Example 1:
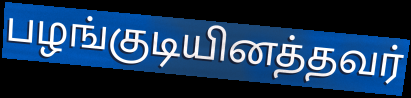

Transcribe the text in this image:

பழங்குடியினத்தவர்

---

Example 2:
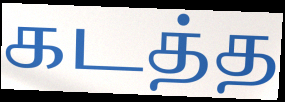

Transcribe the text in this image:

கடத்த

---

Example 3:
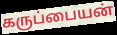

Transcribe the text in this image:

கருப்பையன்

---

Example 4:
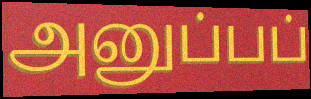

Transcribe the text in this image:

அனுப்பப்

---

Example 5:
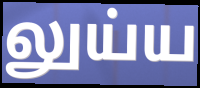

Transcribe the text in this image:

லுய்ய